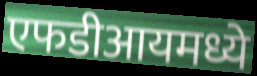
एफडीआयमध्ये